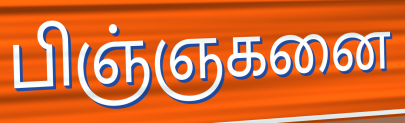
பிஞ்ஞகனை